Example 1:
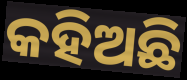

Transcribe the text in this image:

କହିଅଛି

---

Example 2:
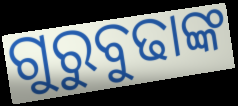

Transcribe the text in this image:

ଗୁରୁବୁଢାଙ୍କ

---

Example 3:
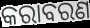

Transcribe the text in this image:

କରାବରଣ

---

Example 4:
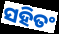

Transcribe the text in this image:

ସହିତଂ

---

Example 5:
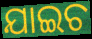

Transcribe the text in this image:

ଯାଇଚ